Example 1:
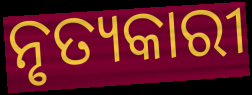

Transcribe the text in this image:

ନୃତ୍ୟକାରୀ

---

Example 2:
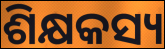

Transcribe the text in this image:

ଶିକ୍ଷକସ୍ୟ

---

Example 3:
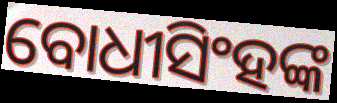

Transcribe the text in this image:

ବୋଧୀସିଂହଙ୍କ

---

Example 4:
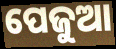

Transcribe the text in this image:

ପେଜୁଆ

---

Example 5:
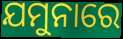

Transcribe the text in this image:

ଯମୁନାରେ